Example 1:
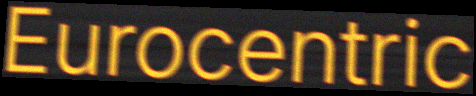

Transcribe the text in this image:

Eurocentric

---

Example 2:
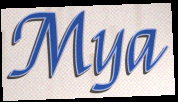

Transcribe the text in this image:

Mya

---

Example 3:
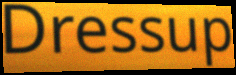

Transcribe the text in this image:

Dressup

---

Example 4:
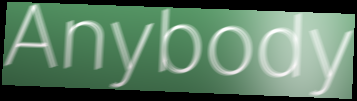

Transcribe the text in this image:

Anybody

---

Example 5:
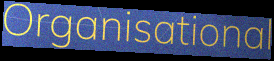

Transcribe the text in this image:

Organisational